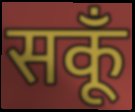
सकूँ